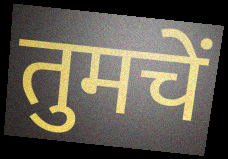
तुमचें